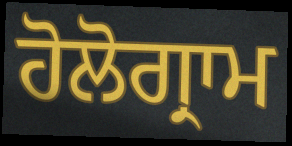
ਹੋਲੋਗ੍ਰਾਮ